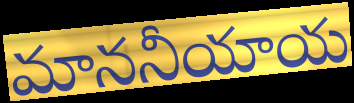
మాననీయాయ